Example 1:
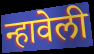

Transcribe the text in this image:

न्हावेली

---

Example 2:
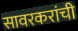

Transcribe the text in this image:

सावरकरांची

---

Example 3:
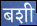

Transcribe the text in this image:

बशी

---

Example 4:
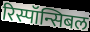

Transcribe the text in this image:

रिस्पॉन्सिबल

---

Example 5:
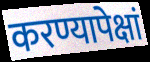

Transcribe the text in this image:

करण्यापेक्षां